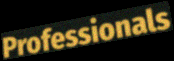
Professionals